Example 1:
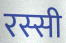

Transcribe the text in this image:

रस्‍सी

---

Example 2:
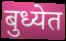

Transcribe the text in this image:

बुध्येत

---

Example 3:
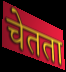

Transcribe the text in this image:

चेतता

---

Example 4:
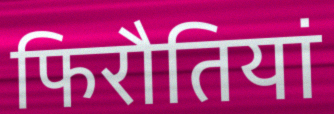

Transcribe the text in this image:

फिरौतियां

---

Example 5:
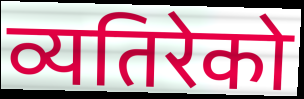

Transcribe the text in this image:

व्यतिरेको